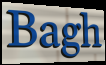
Bagh